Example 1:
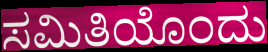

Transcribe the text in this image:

ಸಮಿತಿಯೊಂದು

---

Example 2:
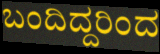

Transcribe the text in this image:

ಬಂದಿದ್ದರಿಂದ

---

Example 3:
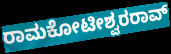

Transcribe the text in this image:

ರಾಮಕೋಟೀಶ್ವರರಾವ್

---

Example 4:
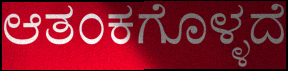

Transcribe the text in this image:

ಆತಂಕಗೊಳ್ಳದೆ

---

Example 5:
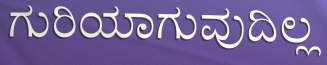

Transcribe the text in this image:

ಗುರಿಯಾಗುವುದಿಲ್ಲ